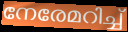
നേരേമറിച്ച്